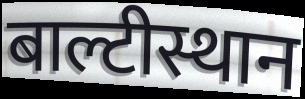
बाल्टीस्थान